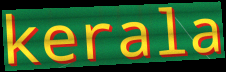
kerala